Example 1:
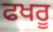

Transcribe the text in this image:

ਫਖਰੂ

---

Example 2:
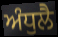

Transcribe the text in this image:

ਅੰਧੁਲੈ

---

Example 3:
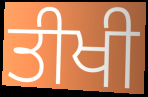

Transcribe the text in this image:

ਤੀਖੀ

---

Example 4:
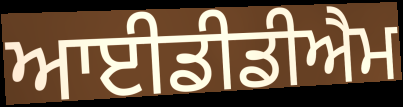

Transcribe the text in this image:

ਆਈਡੀਡੀਐਮ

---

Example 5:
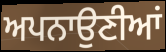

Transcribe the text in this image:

ਅਪਨਾਉਣੀਆਂ